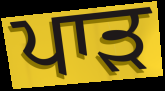
ਪਾੜ